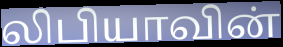
லிபியாவின்